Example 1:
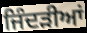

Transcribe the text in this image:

ਜਿੰਦੜੀਆਂ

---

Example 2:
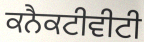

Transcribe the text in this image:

ਕਨੈਕਟੀਵੀਟੀ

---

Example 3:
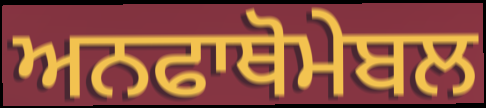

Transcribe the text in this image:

ਅਨਫਾਥੋਮੇਬਲ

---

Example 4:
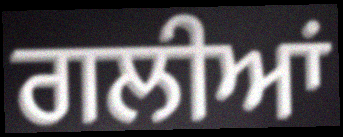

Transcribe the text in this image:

ਗਲੀਆਂ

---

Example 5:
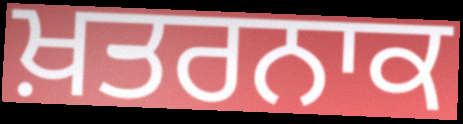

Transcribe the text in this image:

ਖ਼ਤਰਨਾਕ